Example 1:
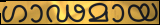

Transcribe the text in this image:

ഗാഢമായ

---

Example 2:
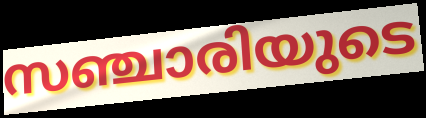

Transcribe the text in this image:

സഞ്ചാരിയുടെ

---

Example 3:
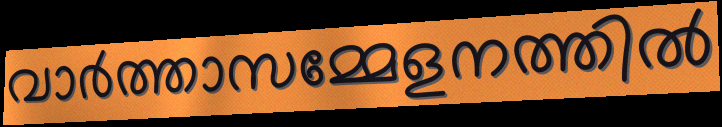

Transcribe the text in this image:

വാർത്താസമ്മേളനത്തിൽ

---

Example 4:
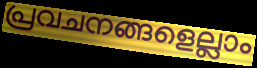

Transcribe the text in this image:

പ്രവചനങ്ങളെല്ലാം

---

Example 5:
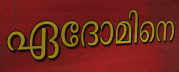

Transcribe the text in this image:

ഏദോമിനെ